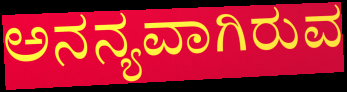
ಅನನ್ಯವಾಗಿರುವ